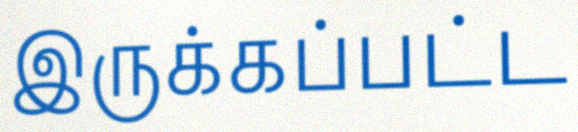
இருக்கப்பட்ட